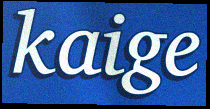
kaige